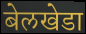
बेलखेडा